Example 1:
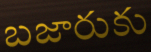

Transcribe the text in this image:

బజారుకు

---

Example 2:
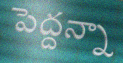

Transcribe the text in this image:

పెద్దన్నా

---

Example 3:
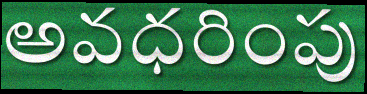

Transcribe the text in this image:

అవధరింపు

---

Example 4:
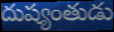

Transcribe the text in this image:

దుష్యంతుడు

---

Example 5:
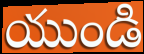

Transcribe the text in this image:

యుండి